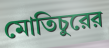
মোতিচুরের